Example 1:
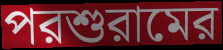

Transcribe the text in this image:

পরশুরামের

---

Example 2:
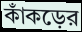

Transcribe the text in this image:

কাঁকড়ের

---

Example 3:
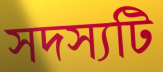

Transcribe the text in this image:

সদস্যটি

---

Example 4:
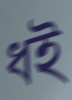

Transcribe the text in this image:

ধই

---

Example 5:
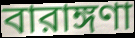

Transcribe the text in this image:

বারাঙ্গণা